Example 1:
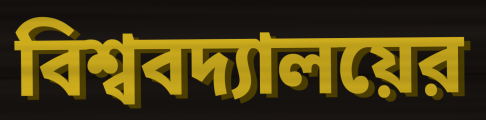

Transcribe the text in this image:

বিশ্ববদ্যালয়ের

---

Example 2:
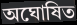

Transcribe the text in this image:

অঘোষিত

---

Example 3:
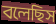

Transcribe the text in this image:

বলেছিস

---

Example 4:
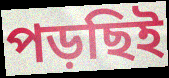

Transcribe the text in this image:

পড়ছিই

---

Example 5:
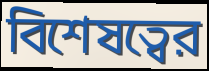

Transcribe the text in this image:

বিশেষত্বের